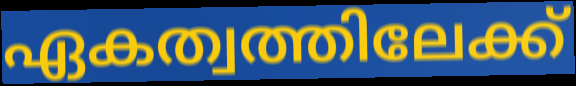
ഏകത്വത്തിലേക്ക്